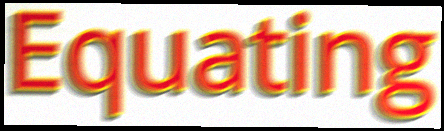
Equating